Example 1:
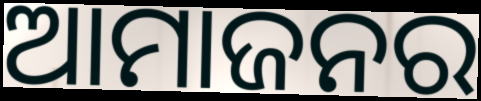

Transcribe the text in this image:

ଆମାଜନର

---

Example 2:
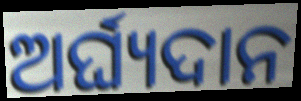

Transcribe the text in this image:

ଅର୍ଘ୍ୟଦାନ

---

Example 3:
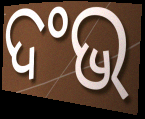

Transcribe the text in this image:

ଦଂଭ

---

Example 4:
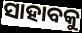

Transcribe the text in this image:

ସାହାବକୁ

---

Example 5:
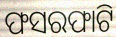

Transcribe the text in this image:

ଫସରଫାଟି